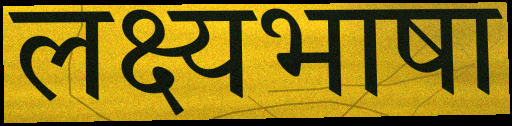
लक्ष्यभाषा